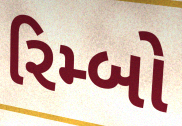
રિમ્બો